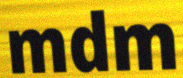
mdm